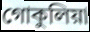
গোকুলিয়া